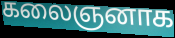
கலைஞனாக